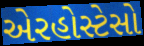
એરહોસ્ટેસો